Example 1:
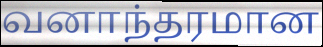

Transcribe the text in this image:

வனாந்தரமான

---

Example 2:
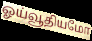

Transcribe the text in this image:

ஓய்வூதியமோ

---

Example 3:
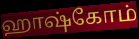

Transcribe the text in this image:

ஹாஷ்கோம்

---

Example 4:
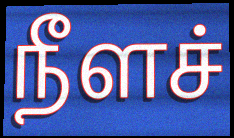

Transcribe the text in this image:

நீளச்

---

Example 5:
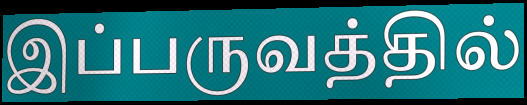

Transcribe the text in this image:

இப்பருவத்தில்